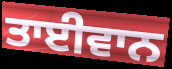
ਤਾਈਵਾਨ